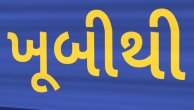
ખૂબીથી